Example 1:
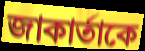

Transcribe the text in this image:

জাকার্তাকে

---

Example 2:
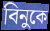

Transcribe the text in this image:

বিনুকে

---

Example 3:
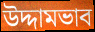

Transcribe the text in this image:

উদ্দামভাব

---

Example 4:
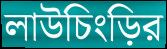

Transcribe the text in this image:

লাউচিংড়ির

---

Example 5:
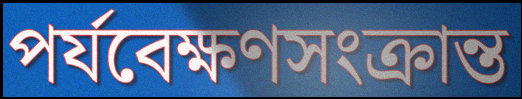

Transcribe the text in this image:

পর্যবেক্ষণসংক্রান্ত